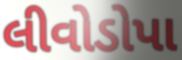
લીવોડોપા